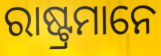
ରାଷ୍ଟ୍ରମାନେ